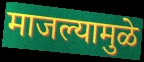
माजल्यामुळे